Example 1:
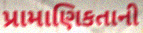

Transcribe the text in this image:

પ્રામાણિકતાની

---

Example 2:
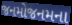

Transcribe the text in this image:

જનમોજનમના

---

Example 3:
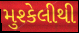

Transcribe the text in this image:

મુશ્કેલીથી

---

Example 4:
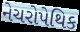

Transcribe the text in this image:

નેચરોપેથિક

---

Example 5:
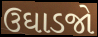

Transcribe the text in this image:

ઉઘાડજો